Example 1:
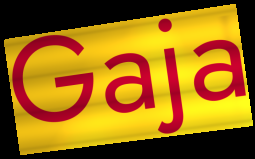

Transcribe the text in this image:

Gaja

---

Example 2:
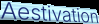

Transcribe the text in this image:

Aestivation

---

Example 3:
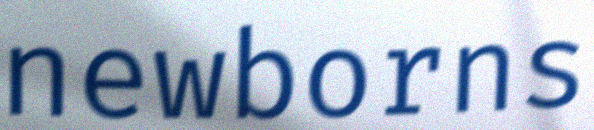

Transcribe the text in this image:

newborns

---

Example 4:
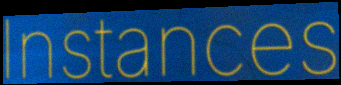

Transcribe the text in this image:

Instances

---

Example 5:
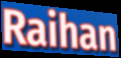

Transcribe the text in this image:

Raihan